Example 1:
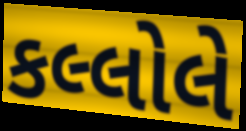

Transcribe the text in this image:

કલ્લોલે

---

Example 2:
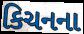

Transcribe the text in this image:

કિચનના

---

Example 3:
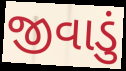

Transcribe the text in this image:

જીવાડું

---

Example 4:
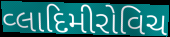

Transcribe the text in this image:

વ્લાદિમીરોવિચ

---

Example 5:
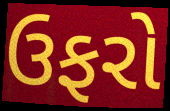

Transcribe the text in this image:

ઉફરો